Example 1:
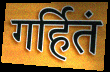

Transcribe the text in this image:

गर्हितं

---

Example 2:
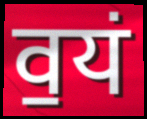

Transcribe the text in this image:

व॒यं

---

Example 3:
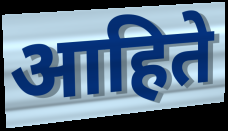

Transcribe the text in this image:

आहिते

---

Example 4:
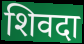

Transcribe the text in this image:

शिवदा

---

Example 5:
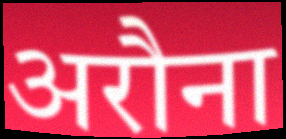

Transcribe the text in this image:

अरौना